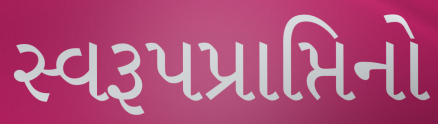
સ્વરૂપપ્રાપ્તિનો